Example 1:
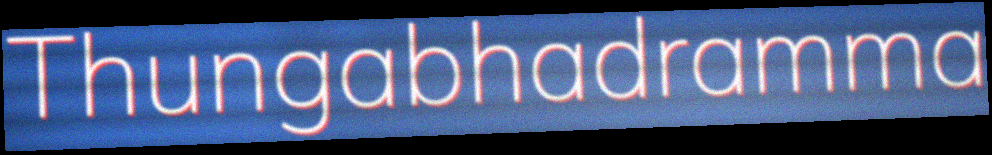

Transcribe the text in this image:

Thungabhadramma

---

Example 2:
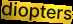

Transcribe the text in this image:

diopters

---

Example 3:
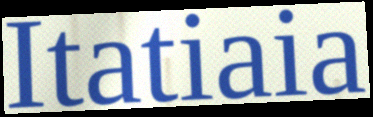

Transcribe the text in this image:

Itatiaia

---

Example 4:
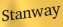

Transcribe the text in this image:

Stanway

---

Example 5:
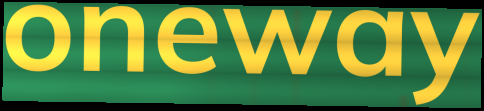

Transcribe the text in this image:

oneway